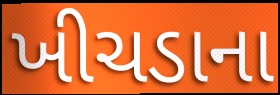
ખીચડાના